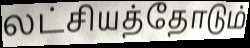
லட்சியத்தோடும்